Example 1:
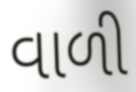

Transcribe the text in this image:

વાળી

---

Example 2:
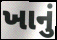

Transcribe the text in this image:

ખાનું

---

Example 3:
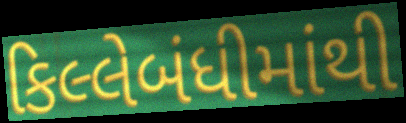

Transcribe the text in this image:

કિલ્લેબંધીમાંથી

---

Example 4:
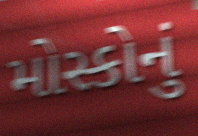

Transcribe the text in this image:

મોસ્કોનું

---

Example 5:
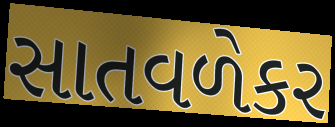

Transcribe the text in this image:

સાતવળેકર